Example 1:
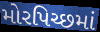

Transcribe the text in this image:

મોરપિચ્છમાં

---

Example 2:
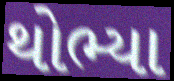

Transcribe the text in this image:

થોભ્યા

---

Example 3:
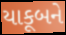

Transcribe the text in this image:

યાકૂબને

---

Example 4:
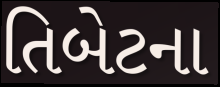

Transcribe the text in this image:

તિબેટના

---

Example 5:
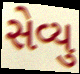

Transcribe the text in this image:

સેવ્યુ